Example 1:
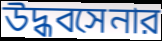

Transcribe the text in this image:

উদ্ধবসেনার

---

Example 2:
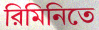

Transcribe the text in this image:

রিমিনিতে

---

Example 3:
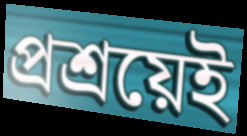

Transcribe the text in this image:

প্রশ্রয়েই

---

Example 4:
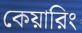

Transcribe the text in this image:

কেয়ারিং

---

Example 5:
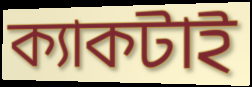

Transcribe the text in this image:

ক্যাকটাই